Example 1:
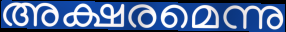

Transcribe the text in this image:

അക്ഷരമെന്നു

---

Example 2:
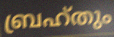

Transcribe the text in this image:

ബ്രഹ്തും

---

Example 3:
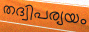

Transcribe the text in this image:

തദ്വിപര്യയം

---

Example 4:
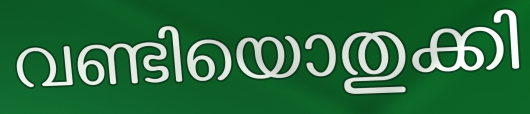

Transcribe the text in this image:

വണ്ടിയൊതുക്കി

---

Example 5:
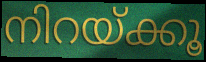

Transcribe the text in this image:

നിറയ്ക്കൂ